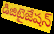
డిజిటైజేషన్